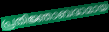
പ്രതിജ്ഞാബദ്ധമായ